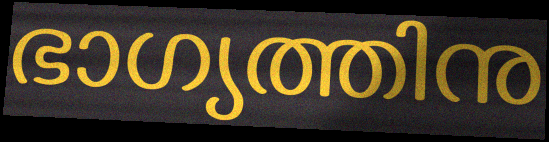
ഭാഗ്യത്തിനു